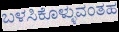
ಬಳಸಿಕೊಳ್ಳುವಂತಹ